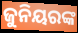
ଜୁନିୟରଙ୍କ